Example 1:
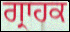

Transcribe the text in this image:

ਗ੍ਰਾਹਕ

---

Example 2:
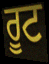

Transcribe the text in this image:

ਰੂਟ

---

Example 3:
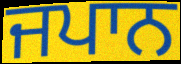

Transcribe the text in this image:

ਜਪਾਨ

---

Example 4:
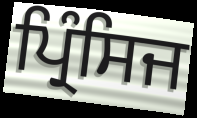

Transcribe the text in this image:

ਪ੍ਰਿੰਸਿਜ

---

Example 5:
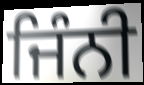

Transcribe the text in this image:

ਜਿੰਨੀ